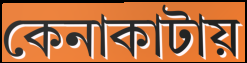
কেনাকাটায়